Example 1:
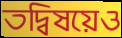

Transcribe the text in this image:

তদ্বিষয়েও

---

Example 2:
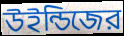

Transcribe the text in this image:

উইন্ডিজের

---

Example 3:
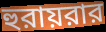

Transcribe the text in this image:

হুরায়রার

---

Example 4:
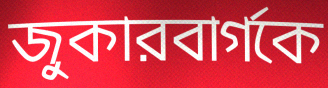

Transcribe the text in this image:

জুকারবার্গকে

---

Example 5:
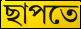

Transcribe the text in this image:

ছাপতে